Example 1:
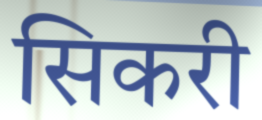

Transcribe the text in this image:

सिकरी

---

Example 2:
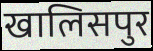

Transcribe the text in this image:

खालिसपुर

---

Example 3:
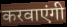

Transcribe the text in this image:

करवाएंगी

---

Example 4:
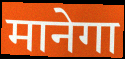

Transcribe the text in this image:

मानेगा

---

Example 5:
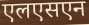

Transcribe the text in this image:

एलएसएन